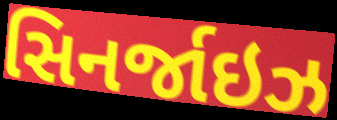
સિનર્જાઇઝ